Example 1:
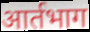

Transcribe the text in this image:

आर्तभाग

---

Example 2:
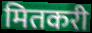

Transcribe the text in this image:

मितकरी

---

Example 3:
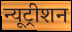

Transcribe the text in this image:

न्यूट्रीशन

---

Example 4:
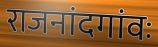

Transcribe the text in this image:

राजनांदगांवः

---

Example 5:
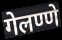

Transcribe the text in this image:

गेलण्णे